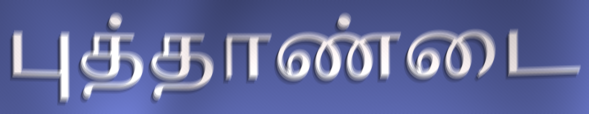
புத்தாண்டை